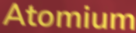
Atomium